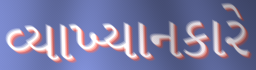
વ્યાખ્યાનકારે